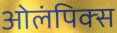
ओलंपिक्‍स